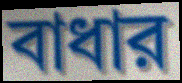
বাধার